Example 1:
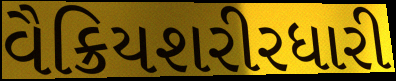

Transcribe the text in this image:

વૈક્રિયશરીરધારી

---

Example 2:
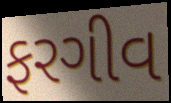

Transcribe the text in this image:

ફરગીવ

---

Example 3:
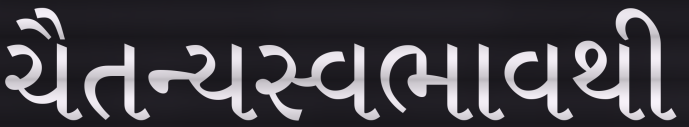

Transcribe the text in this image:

ચૈતન્યસ્વભાવથી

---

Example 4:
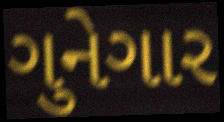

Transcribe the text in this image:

ગુનેગાર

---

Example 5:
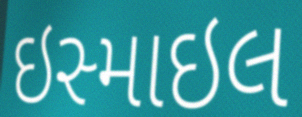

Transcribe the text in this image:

ઇસ્માઇલ